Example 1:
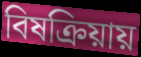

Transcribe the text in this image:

বিষক্রিয়ায়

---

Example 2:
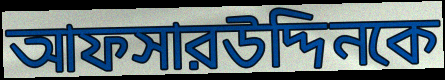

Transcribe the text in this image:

আফসারউদ্দিনকে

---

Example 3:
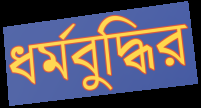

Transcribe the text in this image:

ধর্মবুদ্ধির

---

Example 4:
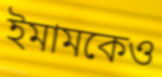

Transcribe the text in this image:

ইমামকেও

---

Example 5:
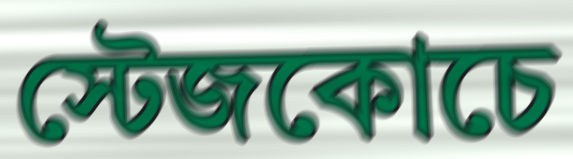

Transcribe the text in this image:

স্টেজকোচে